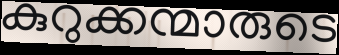
കുറുക്കന്മാരുടെ